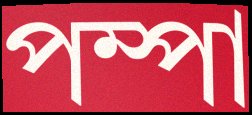
পম্পা